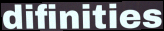
difinities